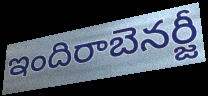
ఇందిరాబెనర్జీ